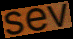
sev